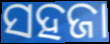
ସହଜା